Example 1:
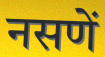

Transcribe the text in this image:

नसणें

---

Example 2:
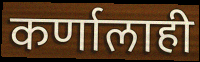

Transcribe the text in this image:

कर्णालाही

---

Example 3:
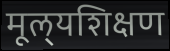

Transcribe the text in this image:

मूल्यशिक्षण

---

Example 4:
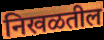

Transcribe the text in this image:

निखळतील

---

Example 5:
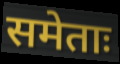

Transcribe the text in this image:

समेताः